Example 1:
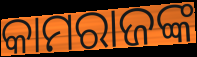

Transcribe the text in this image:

କାମରାଜଙ୍କ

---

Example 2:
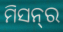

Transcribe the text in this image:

ମିସନ୍‍ର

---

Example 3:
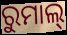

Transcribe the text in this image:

ରୁମାଲ୍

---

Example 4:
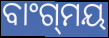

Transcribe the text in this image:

ବାଂଗ୍‌ମୟ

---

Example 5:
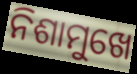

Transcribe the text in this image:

ନିଶାମୁଖେ